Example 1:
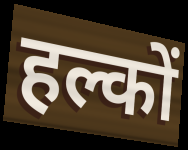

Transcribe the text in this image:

हल्कों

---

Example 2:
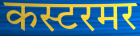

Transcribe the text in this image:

कस्टरमर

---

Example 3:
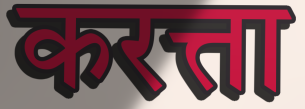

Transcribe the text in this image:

करत्ता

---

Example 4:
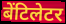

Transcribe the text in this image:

बेंटिलेटर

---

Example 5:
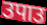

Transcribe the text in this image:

उपाउ